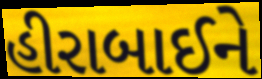
હીરાબાઈને